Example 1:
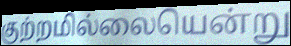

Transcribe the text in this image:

குற்றமில்லையென்று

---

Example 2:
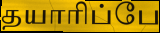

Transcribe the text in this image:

தயாரிப்பே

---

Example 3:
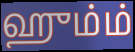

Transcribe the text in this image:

ஹும்ம்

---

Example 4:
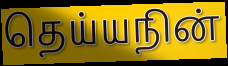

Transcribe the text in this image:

தெய்யநின்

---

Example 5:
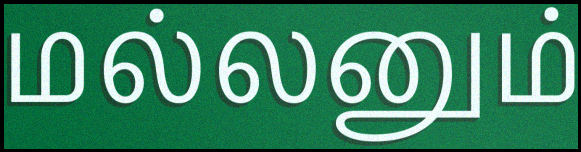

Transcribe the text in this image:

மல்லனும்